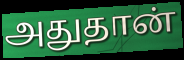
அதுதான்